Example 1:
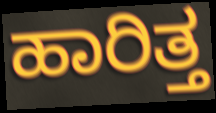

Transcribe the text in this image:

ಹಾರಿತ್ತ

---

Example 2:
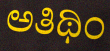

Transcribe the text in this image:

ಅತಿಥಿಂ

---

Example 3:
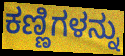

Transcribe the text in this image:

ಕಣ್ಣಿಗಳನ್ನು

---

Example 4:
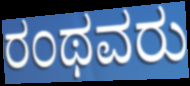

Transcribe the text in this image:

ರಂಥವರು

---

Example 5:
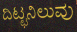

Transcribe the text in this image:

ದಿಟ್ಟನಿಲುವು